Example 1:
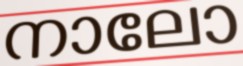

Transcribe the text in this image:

നാലോ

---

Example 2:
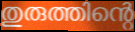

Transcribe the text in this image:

തുരുത്തിന്റെ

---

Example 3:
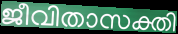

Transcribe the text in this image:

ജീവിതാസക്തി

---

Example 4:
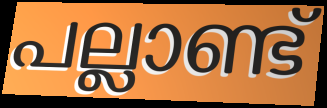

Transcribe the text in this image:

പല്ലാണ്ട്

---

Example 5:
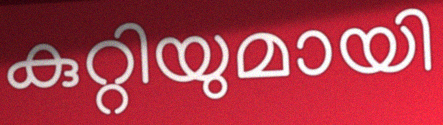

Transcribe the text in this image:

കുറ്റിയുമായി